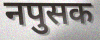
नपुसक